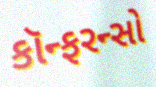
કૉન્ફરન્સો